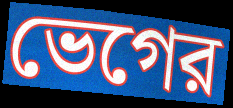
ভেগের